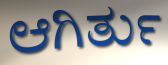
ಆಗಿರ್ತು